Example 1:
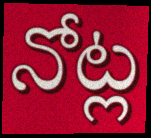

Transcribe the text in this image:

నోట్ల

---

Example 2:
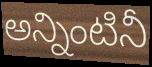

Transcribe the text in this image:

అన్నింటినీ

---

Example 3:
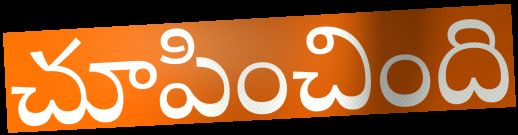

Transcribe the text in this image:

చూపించింది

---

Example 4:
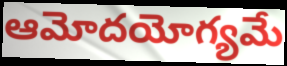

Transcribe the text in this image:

ఆమోదయోగ్యమే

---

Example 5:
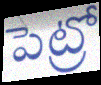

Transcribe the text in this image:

పెట్రో